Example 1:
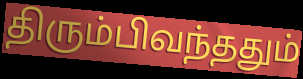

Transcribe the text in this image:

திரும்பிவந்ததும்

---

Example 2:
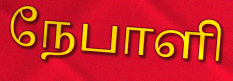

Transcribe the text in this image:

நேபாளி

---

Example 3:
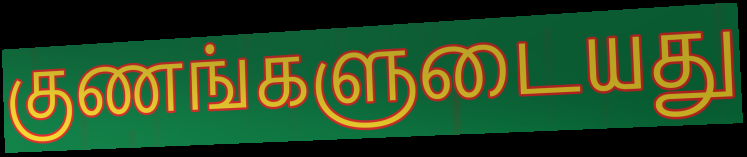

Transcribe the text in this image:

குணங்களுடையது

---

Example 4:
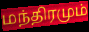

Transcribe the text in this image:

மந்திரமும்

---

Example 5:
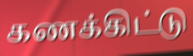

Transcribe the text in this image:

கணக்கிட்டு